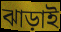
ঝাড়াই